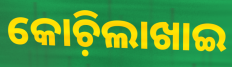
କୋଚ଼ିଲାଖାଇ